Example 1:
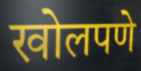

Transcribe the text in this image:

खोलपणे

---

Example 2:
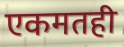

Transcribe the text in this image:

एकमतही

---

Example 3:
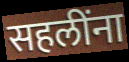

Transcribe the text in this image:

सहलींना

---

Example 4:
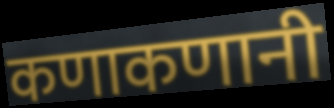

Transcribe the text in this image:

कणाकणानी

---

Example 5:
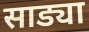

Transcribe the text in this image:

साड्या